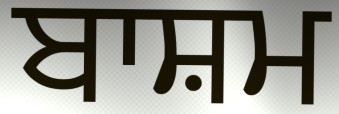
ਬਾਸ਼ਮ